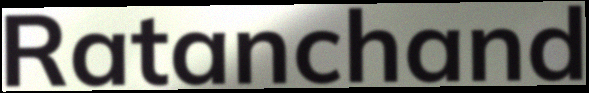
Ratanchand